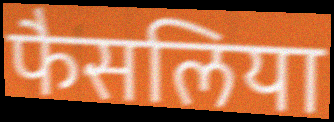
फैसलिया